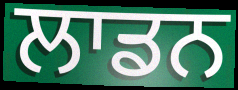
ਲਾਡਨ